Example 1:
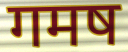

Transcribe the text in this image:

गमष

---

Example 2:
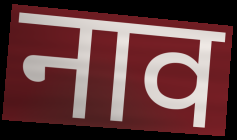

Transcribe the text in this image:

नाव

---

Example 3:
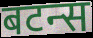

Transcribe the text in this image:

बटन्स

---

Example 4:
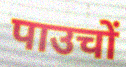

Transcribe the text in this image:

पाउचों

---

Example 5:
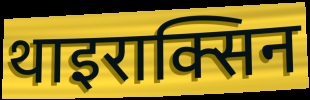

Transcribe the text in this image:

थाइराक्सिन